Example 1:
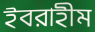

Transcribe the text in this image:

ইবরাহীম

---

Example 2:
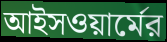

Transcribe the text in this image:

আইসওয়ার্মের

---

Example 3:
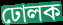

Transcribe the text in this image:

ঢোলক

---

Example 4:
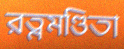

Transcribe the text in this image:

রত্নমণ্ডিতা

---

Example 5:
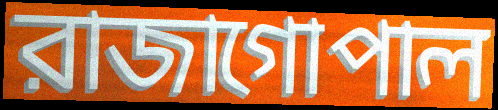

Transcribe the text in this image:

রাজাগোপাল